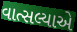
વાત્સલ્યાએ